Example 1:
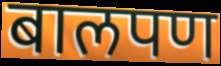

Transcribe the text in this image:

बालपण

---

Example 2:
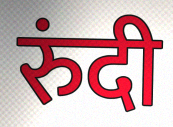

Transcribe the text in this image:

रुंदी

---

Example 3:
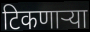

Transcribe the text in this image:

टिकणाऱ्या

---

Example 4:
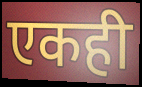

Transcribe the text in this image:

एकही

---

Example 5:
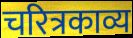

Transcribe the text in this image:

चरित्रकाव्य